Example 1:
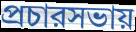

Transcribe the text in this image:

প্রচারসভায়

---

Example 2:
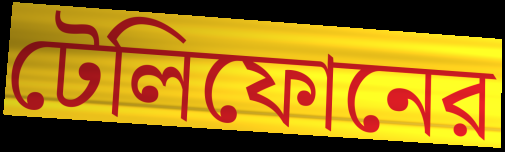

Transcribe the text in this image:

টেলিফোনের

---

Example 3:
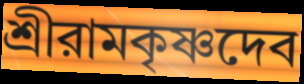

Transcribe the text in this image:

শ্রীরামকৃষ্ণদেব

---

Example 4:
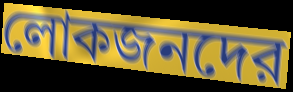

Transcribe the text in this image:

লোকজনদের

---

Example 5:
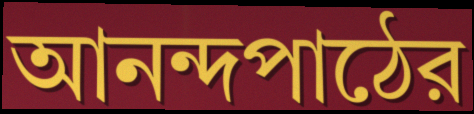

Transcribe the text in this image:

আনন্দপাঠের